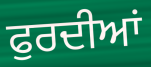
ਫੁਰਦੀਆਂ